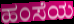
ಹಂಸೆಯ